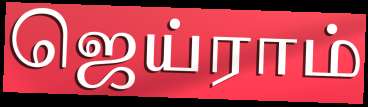
ஜெய்ராம்